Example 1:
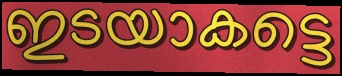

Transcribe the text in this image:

ഇടയാകട്ടെ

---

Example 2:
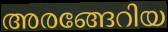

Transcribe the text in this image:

അരങ്ങേറിയ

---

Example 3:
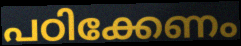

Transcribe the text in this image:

പഠിക്കേണം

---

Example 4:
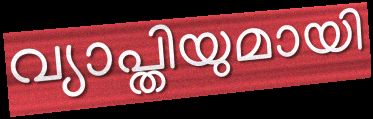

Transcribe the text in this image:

വ്യാപ്തിയുമായി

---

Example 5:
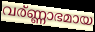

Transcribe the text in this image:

വര്ണ്ണാഭമായ